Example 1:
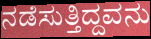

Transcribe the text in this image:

ನಡೆಸುತ್ತಿದ್ದವನು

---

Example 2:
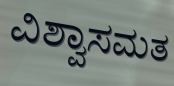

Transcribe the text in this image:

ವಿಶ್ವಾಸಮತ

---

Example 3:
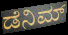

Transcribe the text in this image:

ಡೆನಿಮ್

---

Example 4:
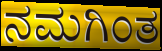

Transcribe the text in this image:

ನಮಗಿಂತ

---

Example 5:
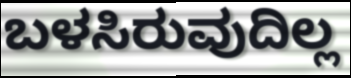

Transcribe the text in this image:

ಬಳಸಿರುವುದಿಲ್ಲ